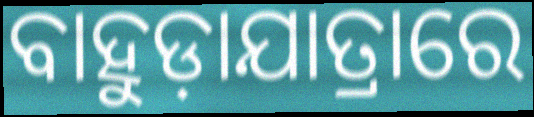
ବାହୁଡ଼ାଯାତ୍ରାରେ